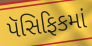
પૅસિફિકમાં